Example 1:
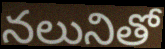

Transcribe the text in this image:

నలునితో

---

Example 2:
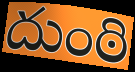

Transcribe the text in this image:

దుంఠి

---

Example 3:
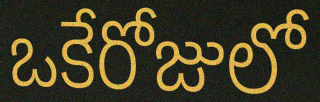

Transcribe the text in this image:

ఒకేరోజులో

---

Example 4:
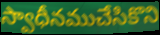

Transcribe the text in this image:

స్వాధీనముచేసికొని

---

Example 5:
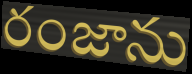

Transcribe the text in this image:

రంజాను